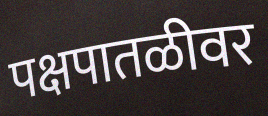
पक्षपातळीवर